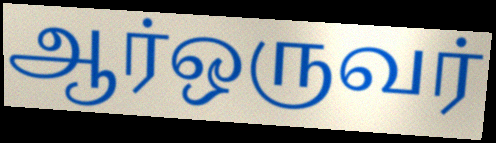
ஆர்ஒருவர்